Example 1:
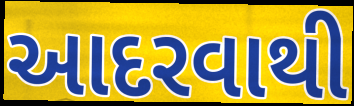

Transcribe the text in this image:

આદરવાથી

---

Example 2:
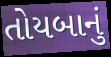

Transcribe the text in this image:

તોયબાનું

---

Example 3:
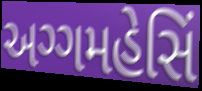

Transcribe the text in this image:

અગ્ગમહેસિં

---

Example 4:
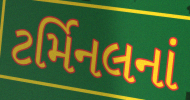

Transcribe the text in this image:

ટર્મિનલનાં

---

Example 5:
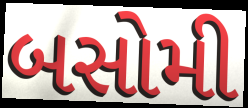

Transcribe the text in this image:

બસોમી